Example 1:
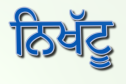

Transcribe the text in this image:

ਨਿਖੱਟੂ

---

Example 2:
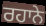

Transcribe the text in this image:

ਰਹਾਨੇ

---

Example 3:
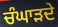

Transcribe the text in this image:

ਚੰਘਾੜਦੇ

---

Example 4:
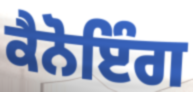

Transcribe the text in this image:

ਕੈਨੋਇੰਗ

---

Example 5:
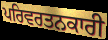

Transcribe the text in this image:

ਪਰਿਵਰਤਨਕਾਰੀ